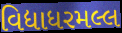
વિદ્યાધરમલ્લ